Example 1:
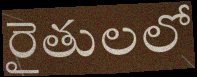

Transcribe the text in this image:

రైతులలో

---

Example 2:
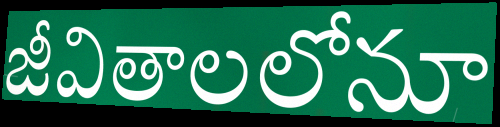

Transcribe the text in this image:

జీవితాలలోనూ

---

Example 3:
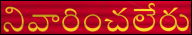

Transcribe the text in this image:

నివారించలేరు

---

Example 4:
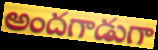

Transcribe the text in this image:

అందగాడుగా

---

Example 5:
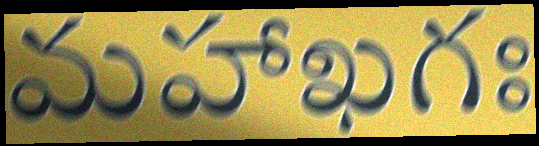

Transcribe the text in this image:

మహాఖగః